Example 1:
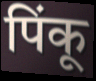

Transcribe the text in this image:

पिंकू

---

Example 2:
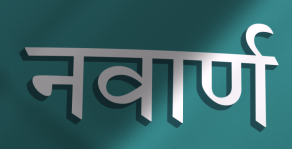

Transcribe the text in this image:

नवार्ण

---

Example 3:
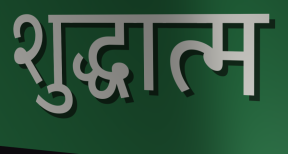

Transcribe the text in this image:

शुद्धात्म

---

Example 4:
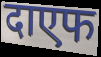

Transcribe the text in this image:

दाएफ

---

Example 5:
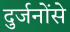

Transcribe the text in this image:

दुर्जनोंसे